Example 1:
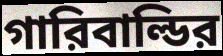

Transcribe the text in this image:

গারিবাল্ডির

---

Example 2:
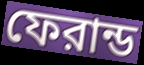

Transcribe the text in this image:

ফেরান্ড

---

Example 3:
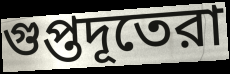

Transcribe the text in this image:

গুপ্তদূতেরা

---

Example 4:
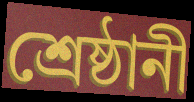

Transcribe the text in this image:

শ্রেষ্ঠানী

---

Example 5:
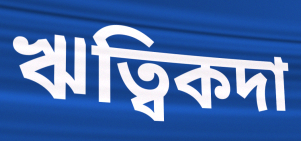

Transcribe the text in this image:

ঋত্বিকদা